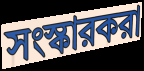
সংস্কারকরা